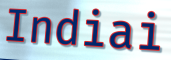
Indiai